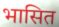
भासित